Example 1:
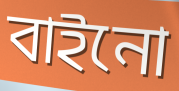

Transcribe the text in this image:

বাইনো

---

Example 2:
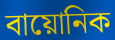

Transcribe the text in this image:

বায়োনিক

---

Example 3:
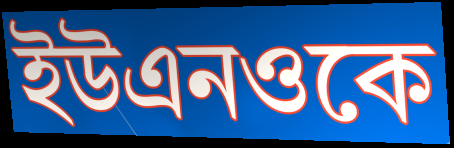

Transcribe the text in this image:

ইউএনওকে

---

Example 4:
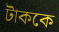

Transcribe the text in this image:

টাককে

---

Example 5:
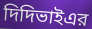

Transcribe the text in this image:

দিদিভাইএর